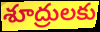
శూద్రులకు